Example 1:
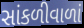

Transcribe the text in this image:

સાંકળીવાળાં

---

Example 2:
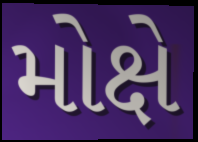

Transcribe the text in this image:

મોક્ષે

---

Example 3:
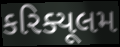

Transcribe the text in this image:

કરિક્યૂલમ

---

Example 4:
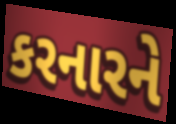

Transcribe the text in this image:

કરનારને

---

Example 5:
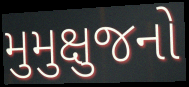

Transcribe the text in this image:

મુમુક્ષુજનો